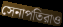
সেনাপতিরাও